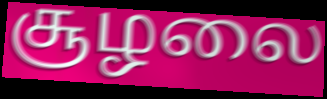
சூழலை